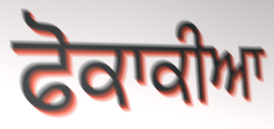
ਫੋਕਾਕੀਆ